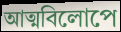
আত্মবিলোপে